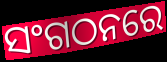
ସଂଗଠନରେ